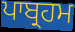
ਪਾਬ੍ਰਹਮ